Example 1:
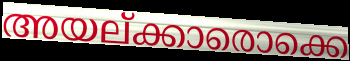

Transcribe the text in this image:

അയല്ക്കാരൊക്കെ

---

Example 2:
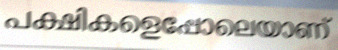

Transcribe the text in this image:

പക്ഷികളെപ്പോലെയാണ്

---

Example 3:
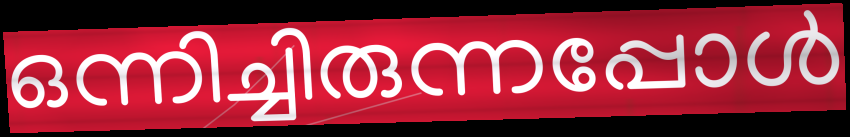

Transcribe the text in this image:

ഒന്നിച്ചിരുന്നപ്പോൾ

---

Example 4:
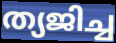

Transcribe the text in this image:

ത്യജിച്ച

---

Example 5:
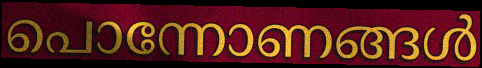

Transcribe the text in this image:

പൊന്നോണങ്ങൾ